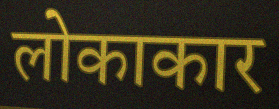
लोकाकार